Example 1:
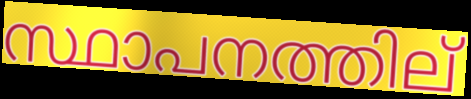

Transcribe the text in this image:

സ്ഥാപനത്തില്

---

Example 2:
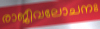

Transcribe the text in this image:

രാജീവലോചനഃ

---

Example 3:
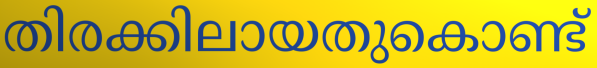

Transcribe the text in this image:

തിരക്കിലായതുകൊണ്ട്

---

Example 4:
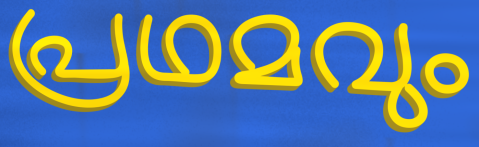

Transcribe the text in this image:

പ്രഥമവും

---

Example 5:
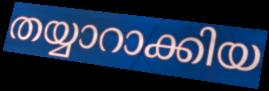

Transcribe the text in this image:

തയ്യാറാക്കിയ